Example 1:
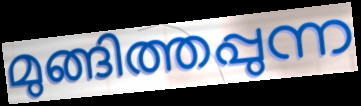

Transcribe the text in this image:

മുങ്ങിത്തപ്പുന്ന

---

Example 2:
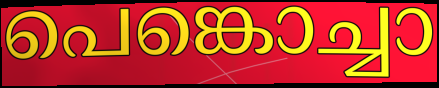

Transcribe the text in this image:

പെങ്കൊച്ചാ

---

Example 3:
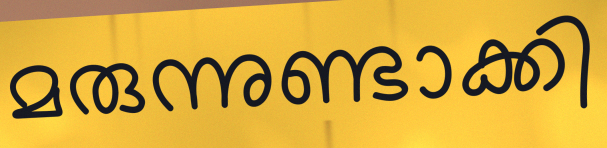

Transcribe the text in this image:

മരുന്നുണ്ടാക്കി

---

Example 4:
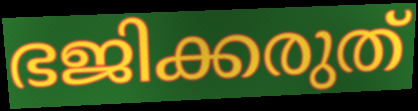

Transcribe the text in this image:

ഭജിക്കരുത്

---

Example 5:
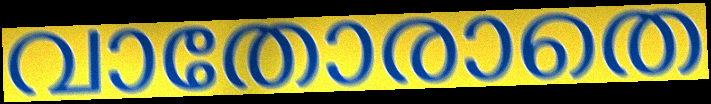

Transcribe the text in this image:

വാതോരാതെ